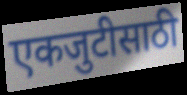
एकजुटीसाठी